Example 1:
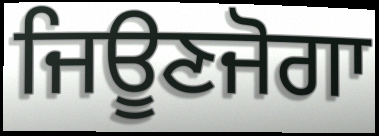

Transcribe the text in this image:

ਜਿਊਣਜੋਗਾ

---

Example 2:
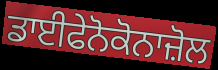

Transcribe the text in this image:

ਡਾਈਫੇਨੋਕੋਨਾਜ਼ੋਲ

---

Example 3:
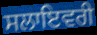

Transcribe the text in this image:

ਸਲਾਇਵਰੀ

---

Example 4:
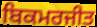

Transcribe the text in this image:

ਬਿਕਮਰਜੀਤ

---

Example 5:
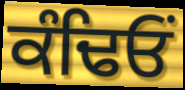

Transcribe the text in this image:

ਕੰਢਿਓਂ